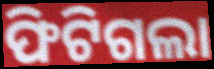
ଫିଟିଗଲା